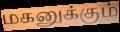
மகனுக்கும்